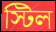
স্টিল